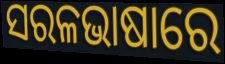
ସରଳଭାଷାରେ